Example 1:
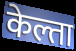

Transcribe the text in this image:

केल्ता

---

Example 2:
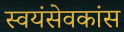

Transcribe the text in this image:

स्वयंसेवकांस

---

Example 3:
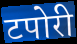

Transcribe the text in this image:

टपोरी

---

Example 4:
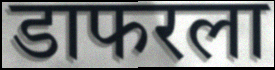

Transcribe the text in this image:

डाफरला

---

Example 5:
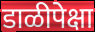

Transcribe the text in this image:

डाळीपेक्षा